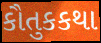
કૌતુકકથા